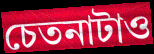
চেতনাটাও